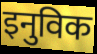
इनुविक